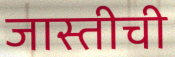
जास्तीची